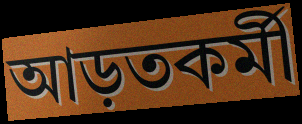
আড়তকর্মী